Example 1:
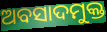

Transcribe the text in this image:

ଅବସାଦମୁକ୍ତ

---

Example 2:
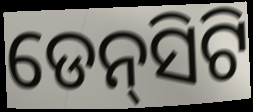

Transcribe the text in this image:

ଡେନ୍‌ସିଟି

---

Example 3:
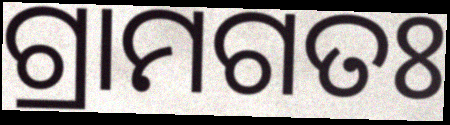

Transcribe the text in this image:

ଗ୍ରାମଗତଃ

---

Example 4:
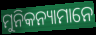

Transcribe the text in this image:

ମୁନିକନ୍ୟାମାନେ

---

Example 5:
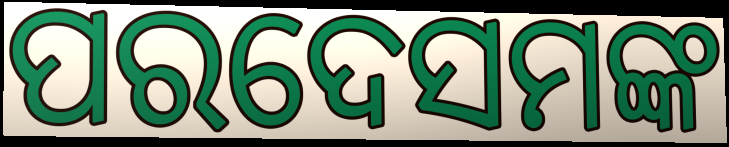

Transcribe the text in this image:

ପରଦେସମଙ୍କ